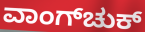
ವಾಂಗ್‌ಚುಕ್